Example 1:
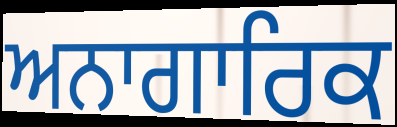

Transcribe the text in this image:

ਅਨਾਗਾਰਿਕ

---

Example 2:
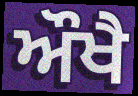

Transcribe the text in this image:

ਔਖੈ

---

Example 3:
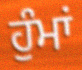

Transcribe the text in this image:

ਹੁੰਮਾਂ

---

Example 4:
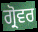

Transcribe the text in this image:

ਗ੍ਰੋਵਰ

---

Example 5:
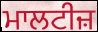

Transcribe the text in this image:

ਮਾਲਟੀਜ਼